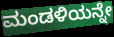
ಮಂಡಳಿಯನ್ನೇ